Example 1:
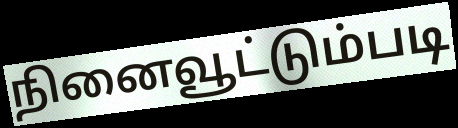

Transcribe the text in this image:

நினைவூட்டும்படி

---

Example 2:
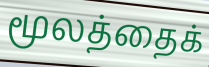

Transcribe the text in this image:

மூலத்தைக்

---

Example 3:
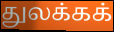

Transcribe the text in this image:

துலக்கக்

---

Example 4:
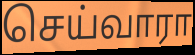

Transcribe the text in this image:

செய்வாரா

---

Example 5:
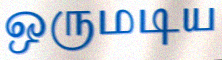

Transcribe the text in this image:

ஒருமடிய